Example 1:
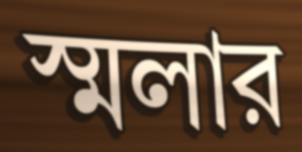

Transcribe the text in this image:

স্মলার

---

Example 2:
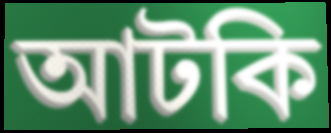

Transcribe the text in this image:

আটকি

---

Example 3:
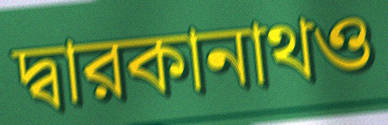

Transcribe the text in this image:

দ্বারকানাথও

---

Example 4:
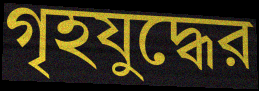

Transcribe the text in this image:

গৃহযুদ্ধের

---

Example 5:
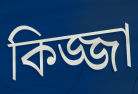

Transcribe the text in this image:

কিজ্জা